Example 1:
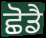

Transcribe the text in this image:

ਛੋਡੈ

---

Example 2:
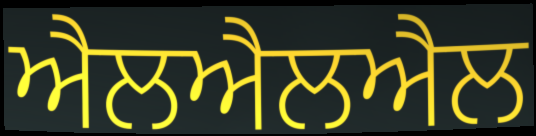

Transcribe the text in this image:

ਐਲਐਲਐਲ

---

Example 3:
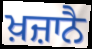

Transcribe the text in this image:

ਖ਼ਜ਼ਾਨੈ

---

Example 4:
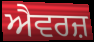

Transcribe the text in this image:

ਐਵਰਜ਼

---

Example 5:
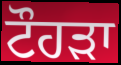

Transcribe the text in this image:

ਟੌਹਡ਼ਾ